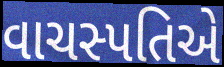
વાચસ્પતિએ